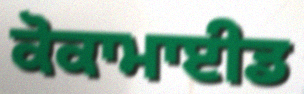
ਕੋਕਾਮਾਈਡ